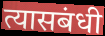
त्यासबंधी